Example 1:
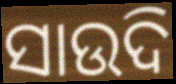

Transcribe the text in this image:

ସାଉଦି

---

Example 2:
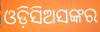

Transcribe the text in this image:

ଓଡ଼ିସିଅସଙ୍କର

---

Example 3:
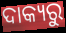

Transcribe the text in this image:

ଦାକ୍ୟରୁ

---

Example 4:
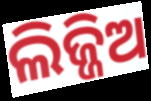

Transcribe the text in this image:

ଲିଜ୍ଜିଅ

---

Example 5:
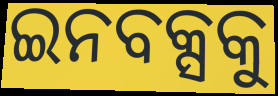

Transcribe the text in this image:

ଇନବକ୍ସକୁ